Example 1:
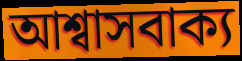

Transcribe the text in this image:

আশ্বাসবাক্য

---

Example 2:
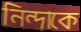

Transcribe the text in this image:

নিন্দাকে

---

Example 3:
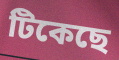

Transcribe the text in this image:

টিকেছে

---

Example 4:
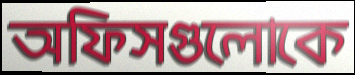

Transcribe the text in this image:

অফিসগুলোকে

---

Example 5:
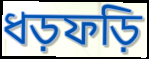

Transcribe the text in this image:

ধড়ফড়ি